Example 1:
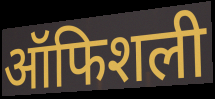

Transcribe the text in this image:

ऑफिशली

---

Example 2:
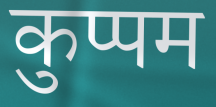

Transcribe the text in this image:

कुप्पम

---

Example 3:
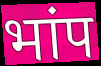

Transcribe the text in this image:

भांप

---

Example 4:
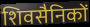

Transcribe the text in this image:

शिवसैनिकों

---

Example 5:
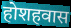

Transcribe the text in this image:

होशहवास